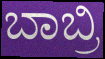
ಬಾಬ್ರಿ